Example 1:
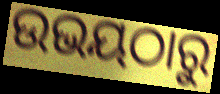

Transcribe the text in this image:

ଉଭୟଠାରୁ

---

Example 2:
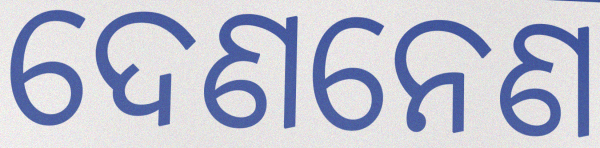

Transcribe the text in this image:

ଦେଣନେଣ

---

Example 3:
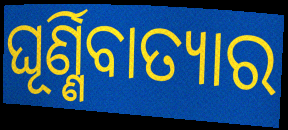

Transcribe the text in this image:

ଘୂର୍ଣ୍ଣିବାତ୍ୟାର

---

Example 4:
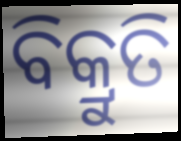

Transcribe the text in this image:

ବିକ୍ରୁତି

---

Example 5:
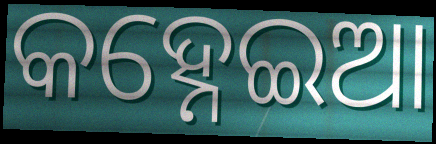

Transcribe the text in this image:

କହ୍ନେଇଆ